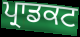
ਪ੍ਰਾਡਕਟ